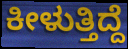
ಕೀಳುತ್ತಿದ್ದೆ